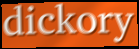
dickory